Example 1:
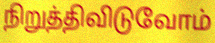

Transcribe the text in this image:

நிறுத்திவிடுவோம்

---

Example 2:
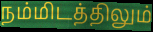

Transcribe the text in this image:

நம்மிடத்திலும்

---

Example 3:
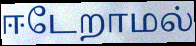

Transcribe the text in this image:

ஈடேறாமல்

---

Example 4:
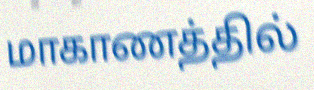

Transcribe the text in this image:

மாகாணத்தில்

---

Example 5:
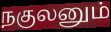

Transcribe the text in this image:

நகுலனும்